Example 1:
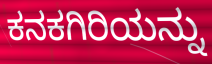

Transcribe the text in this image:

ಕನಕಗಿರಿಯನ್ನು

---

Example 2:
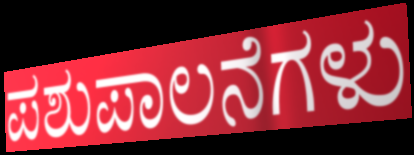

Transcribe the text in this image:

ಪಶುಪಾಲನೆಗಳು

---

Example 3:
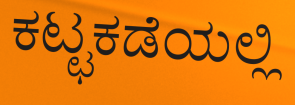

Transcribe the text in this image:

ಕಟ್ಟಕಡೆಯಲ್ಲಿ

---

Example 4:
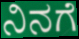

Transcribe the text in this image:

ನಿನಗೆ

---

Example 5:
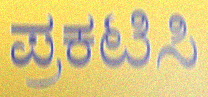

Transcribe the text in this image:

ಪ್ರಕಟಿಸಿ